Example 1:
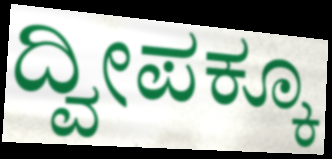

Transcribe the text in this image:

ದ್ವೀಪಕ್ಕೂ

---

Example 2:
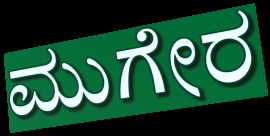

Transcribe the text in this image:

ಮುಗೇರ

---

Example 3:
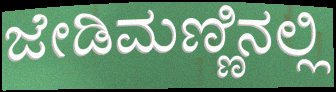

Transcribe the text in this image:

ಜೇಡಿಮಣ್ಣಿನಲ್ಲಿ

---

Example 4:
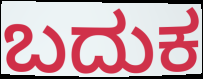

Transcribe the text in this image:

ಬದುಕ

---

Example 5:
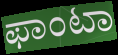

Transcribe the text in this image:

ಫಾಂಟಾ